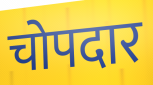
चोपदार